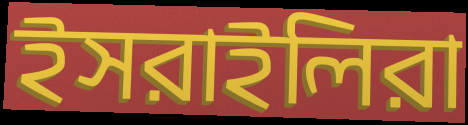
ইসরাইলিরা